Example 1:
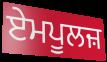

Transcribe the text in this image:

ਏਮਪੂਲਜ਼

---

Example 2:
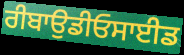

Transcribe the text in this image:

ਰੀਬਾਉਡੀਓਸਾਈਡ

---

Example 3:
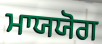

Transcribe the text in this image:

ਮਾਯਯੋਗ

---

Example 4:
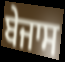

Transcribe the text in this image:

ਬੇਜਾਸ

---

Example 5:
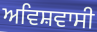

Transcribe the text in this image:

ਅਵਿਸ਼ਵਾਸੀ